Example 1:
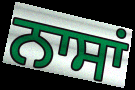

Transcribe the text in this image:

ਨਾਸਾਂ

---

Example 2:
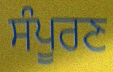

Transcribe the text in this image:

ਸੰਪੂਰਣ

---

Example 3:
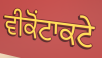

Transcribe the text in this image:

ਵੀਕੋਂਟਾਕਟੇ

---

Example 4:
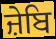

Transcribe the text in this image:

ਜ਼ੇਬਿ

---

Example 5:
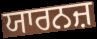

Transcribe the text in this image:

ਯਾਰਨਜ਼